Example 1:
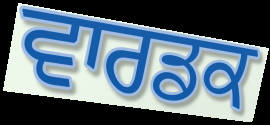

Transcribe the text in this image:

ਵਾਰਡਕ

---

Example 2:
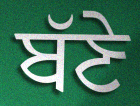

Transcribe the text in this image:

ਬੱਣੇ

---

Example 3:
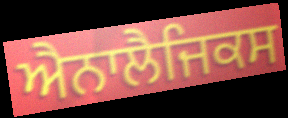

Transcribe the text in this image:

ਐਨਾਲੈਜਿਕਸ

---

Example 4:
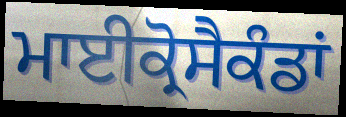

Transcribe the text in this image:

ਮਾਈਕ੍ਰੋਸੈਕੰਡਾਂ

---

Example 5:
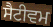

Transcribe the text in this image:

ਸੈਟੀਵਮ